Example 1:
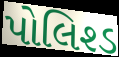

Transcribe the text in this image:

પોલિશ્ડ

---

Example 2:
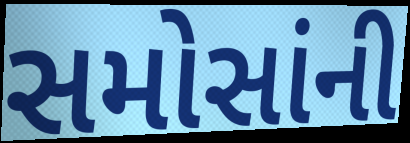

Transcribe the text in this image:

સમોસાંની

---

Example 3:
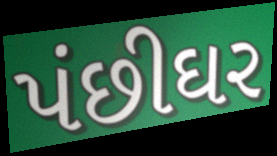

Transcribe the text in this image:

પંછીઘર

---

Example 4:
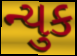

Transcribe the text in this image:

ન્યુક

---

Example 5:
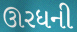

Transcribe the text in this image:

ઊરધની